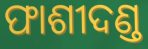
ଫାଶୀଦଣ୍ଡ